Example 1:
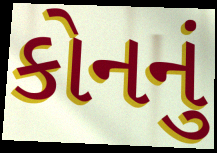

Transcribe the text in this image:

કોનનું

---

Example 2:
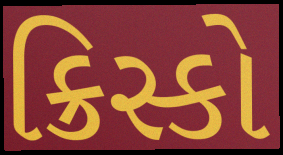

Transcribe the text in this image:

ક્રિસ્કો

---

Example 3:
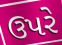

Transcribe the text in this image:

ઉપરે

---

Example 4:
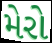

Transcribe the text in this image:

મેરો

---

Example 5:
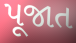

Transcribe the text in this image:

પૂજાત